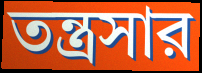
তন্ত্রসার